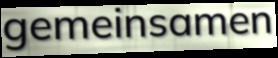
gemeinsamen